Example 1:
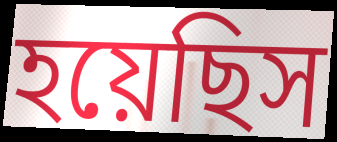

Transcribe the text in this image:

হয়েছিস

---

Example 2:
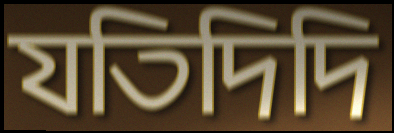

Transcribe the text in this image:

যতিদিদি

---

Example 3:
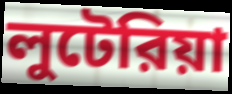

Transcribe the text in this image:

লুটেরিয়া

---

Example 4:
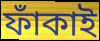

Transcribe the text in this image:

ফাঁকাই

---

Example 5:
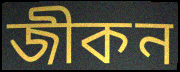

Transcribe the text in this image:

জীকন